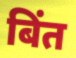
बिंत